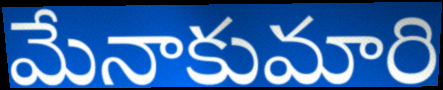
మేనాకుమారి